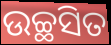
ଉଚ୍ଛସିତ